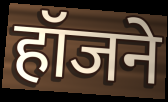
हॉजने